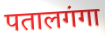
पतालगंगा